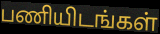
பணியிடங்கள்